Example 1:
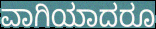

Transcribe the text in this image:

ವಾಗಿಯಾದರೂ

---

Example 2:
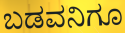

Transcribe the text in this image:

ಬಡವನಿಗೂ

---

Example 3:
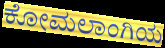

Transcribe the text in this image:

ಕೋಮಲಾಂಗಿಯ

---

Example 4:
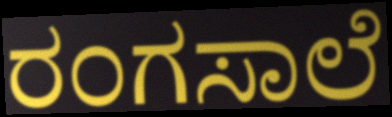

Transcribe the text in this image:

ರಂಗಸಾಲೆ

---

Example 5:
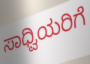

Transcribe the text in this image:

ಸಾಧ್ವಿಯರಿಗೆ